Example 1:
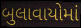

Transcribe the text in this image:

બુલાવાયોમાં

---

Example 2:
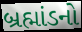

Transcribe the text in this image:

બ્રહ્માંડનો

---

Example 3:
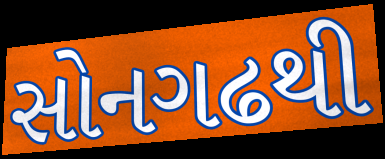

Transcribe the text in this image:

સોનગઢથી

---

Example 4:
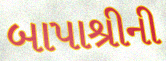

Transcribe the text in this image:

બાપાશ્રીની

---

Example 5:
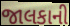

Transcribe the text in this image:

જાલકાની